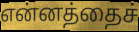
என்னத்தைச்